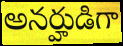
అనర్హుడిగా